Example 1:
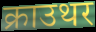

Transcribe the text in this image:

क्राउथर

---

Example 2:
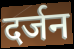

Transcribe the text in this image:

दर्जन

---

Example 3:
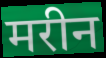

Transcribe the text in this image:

मरीन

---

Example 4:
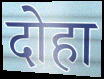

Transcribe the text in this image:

दोहा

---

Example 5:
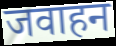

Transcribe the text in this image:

जवाहन